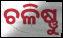
ଚଳିଷ୍ଣୁ